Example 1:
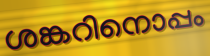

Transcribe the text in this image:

ശങ്കറിനൊപ്പം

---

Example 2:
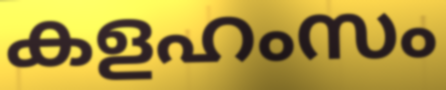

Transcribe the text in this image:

കളഹംസം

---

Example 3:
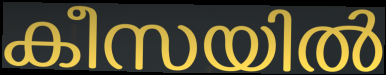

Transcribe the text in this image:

കീസയിൽ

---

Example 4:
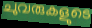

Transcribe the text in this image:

ചുവരുകളുടെ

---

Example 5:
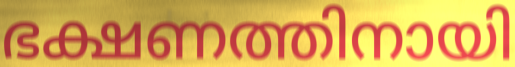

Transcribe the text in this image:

ഭക്ഷണത്തിനായി